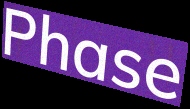
Phase